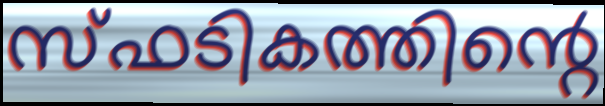
സ്ഫടികത്തിന്റെ